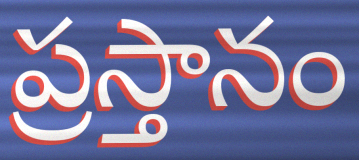
ప్రస్తానం